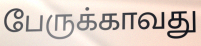
பேருக்காவது